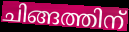
ചിങ്ങത്തിന്